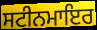
ਸਟੀਨਮਾਇਰ